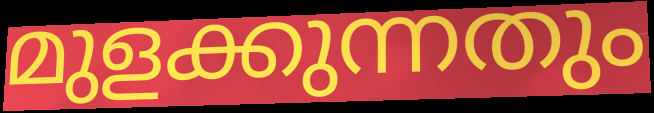
മുളക്കുന്നതും